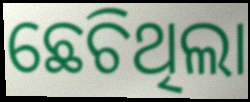
ଛେଚିଥିଲା